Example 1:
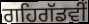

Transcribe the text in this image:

ਗਹਿਗੱਡਵੀਂ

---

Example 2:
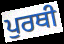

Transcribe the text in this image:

ਪੁਰਥੀ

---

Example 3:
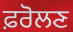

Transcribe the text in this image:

ਫ਼ਰੋਲਣ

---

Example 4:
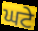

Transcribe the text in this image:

ਘਟੇ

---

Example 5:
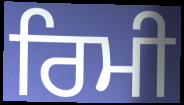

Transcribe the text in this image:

ਰਿਮੀ